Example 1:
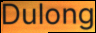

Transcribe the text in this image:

Dulong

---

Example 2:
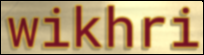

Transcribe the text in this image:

wikhri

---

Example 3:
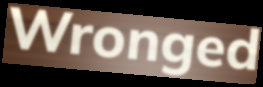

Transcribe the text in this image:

Wronged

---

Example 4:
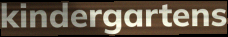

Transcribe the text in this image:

kindergartens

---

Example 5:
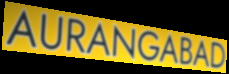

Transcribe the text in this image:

AURANGABAD